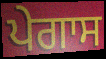
ਪੇਗਾਸ